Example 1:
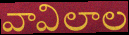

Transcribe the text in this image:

వావిలాల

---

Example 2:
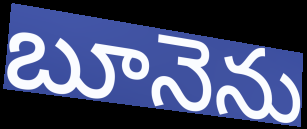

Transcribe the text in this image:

బూనెను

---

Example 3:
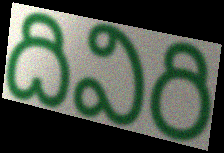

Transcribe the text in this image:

దివిరి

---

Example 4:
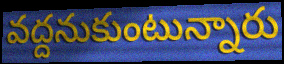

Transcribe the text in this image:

వద్దనుకుంటున్నారు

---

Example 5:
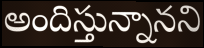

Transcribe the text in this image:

అందిస్తున్నానని